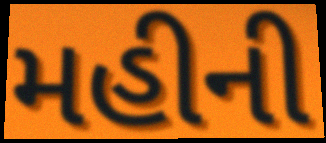
મહીની